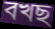
বখছ